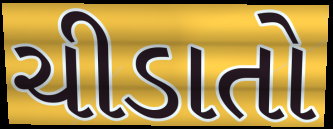
ચીડાતો